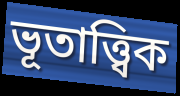
ভূতাত্ত্বিক